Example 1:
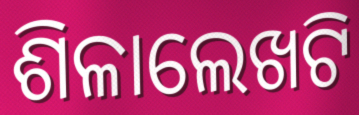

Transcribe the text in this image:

ଶିଳାଲେଖଟି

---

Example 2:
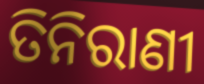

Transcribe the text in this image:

ତିନିରାଣୀ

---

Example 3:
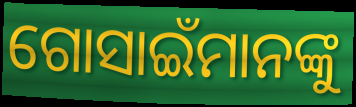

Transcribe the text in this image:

ଗୋସାଇଁମାନଙ୍କୁ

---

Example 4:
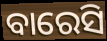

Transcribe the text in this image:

ବାରେସି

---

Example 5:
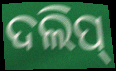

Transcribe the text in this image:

ଦଲିପ୍